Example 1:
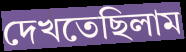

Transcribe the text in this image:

দেখতেছিলাম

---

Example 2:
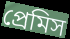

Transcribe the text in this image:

প্রেমিস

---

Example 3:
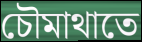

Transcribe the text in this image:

চৌমাথাতে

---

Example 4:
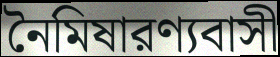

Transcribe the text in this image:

নৈমিষারণ্যবাসী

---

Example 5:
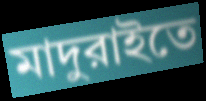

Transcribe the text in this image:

মাদুরাইতে